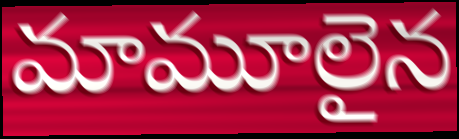
మామూలైన